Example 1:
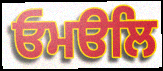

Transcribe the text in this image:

ਓਮੳਲਿ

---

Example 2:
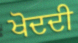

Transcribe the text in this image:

ਖੋਦਦੀ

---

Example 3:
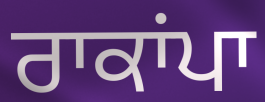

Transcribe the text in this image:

ਰਾਕਾਂਪਾ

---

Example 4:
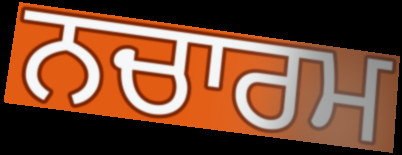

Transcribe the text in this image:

ਨਚਾਰਮ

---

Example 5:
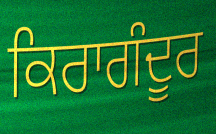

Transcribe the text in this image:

ਕਿਰਾਗੰਦੂਰ